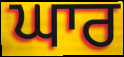
ਘਾਰ